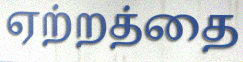
ஏற்றத்தை